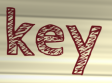
key